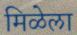
मिळेला